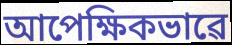
আপেক্ষিকভাৱে